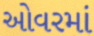
ઓવરમાં